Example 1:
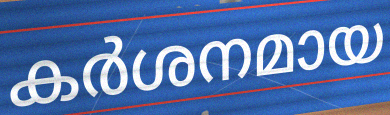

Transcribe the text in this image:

കർശനമായ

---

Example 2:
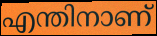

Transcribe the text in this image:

എന്തിനാണ്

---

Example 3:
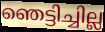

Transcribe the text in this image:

ഞെട്ടിച്ചില്ല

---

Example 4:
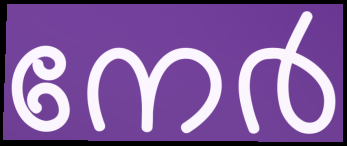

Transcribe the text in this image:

നേർ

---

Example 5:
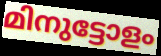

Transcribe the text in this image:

മിനുട്ടോളം